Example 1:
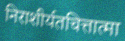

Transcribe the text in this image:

निराशीर्यतचित्तात्मा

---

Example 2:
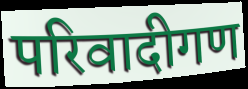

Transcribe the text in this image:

परिवादीगण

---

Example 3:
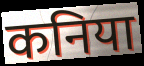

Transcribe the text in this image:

कनिया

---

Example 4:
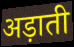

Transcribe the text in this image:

अड़ाती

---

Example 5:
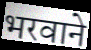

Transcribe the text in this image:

भरवाने